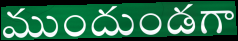
ముందుండగా